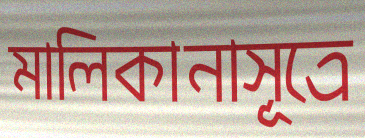
মালিকানাসূত্রে